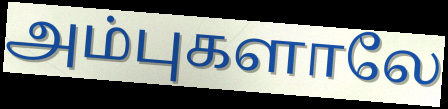
அம்புகளாலே